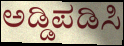
ಅಡ್ಡಿಪಡಿಸಿ